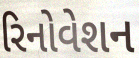
રિનોવેશન